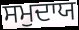
ਸਮੁਦਾਯ